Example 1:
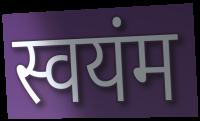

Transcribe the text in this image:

स्वयंम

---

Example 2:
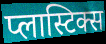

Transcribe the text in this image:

प्लास्टिक्स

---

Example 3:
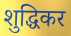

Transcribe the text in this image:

शुद्धिकर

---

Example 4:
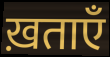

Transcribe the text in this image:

ख़ताएँ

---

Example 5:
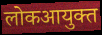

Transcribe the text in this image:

लोकआयुक्त